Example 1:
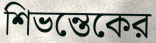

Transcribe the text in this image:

শিভন্তেকের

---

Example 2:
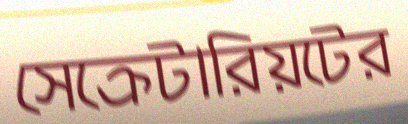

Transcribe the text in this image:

সেক্রেটারিয়টের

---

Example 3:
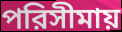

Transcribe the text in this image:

পরিসীমায়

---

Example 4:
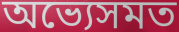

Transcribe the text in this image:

অভ্যেসমত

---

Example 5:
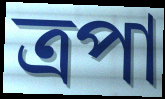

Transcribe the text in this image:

ত্রপা